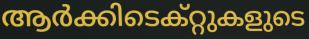
ആർക്കിടെക്റ്റുകളുടെ